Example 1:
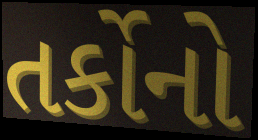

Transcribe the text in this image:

તર્કોનો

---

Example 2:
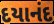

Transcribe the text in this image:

દયાનંદ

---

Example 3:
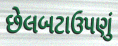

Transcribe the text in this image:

છેલબટાઉપણું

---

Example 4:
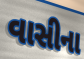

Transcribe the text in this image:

વાસીના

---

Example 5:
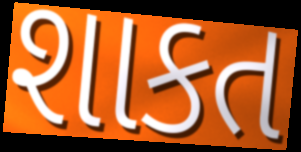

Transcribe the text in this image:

શાકત